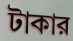
টাকার